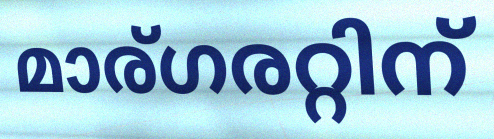
മാര്ഗരറ്റിന്